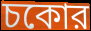
চকোর